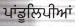
ਪਾਂਡੂਲਿਪੀਆਂ